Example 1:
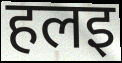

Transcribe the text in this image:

हलइ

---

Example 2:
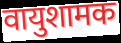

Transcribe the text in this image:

वायुशामक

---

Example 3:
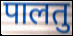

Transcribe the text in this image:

पालतु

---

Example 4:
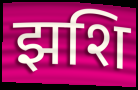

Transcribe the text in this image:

झशि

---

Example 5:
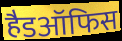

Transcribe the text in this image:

हैडऑफिस